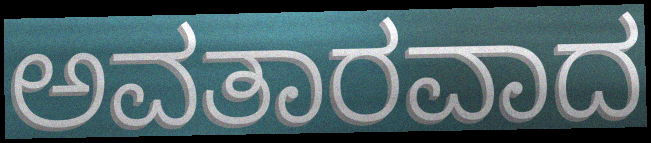
ಅವತಾರವಾದ